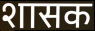
शासक